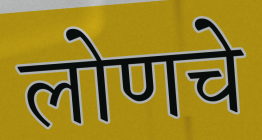
लोणचे